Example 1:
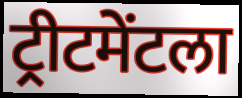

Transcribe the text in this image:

ट्रीटमेंटला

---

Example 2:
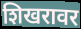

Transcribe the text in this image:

शिखरावर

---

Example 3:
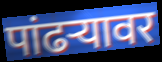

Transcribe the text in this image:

पांढर्‍यावर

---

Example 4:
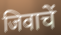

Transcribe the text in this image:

जिवाचें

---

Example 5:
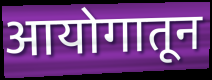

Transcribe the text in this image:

आयोगातून